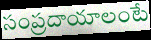
సంప్రదాయాలంటే